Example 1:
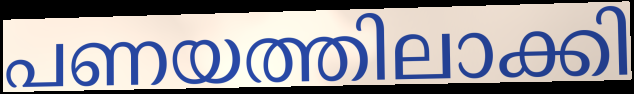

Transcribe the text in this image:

പണയത്തിലാക്കി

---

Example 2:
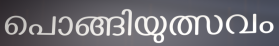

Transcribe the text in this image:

പൊങ്ങിയുത്സവം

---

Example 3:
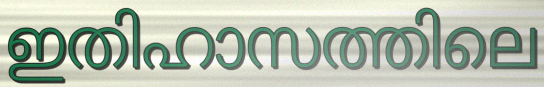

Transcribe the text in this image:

ഇതിഹാസത്തിലെ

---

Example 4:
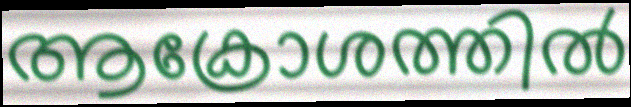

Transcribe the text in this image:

ആക്രോശത്തിൽ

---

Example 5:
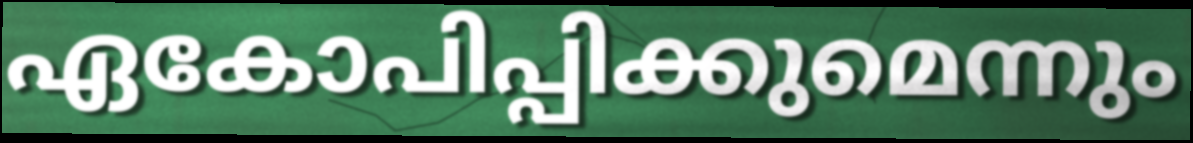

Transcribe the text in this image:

ഏകോപിപ്പിക്കുമെന്നും